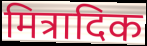
मित्रादिक